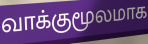
வாக்குமூலமாக